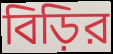
বিড়ির